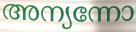
അന്യന്നോ